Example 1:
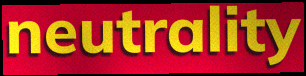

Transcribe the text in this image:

neutrality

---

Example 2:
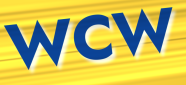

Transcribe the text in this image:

WCW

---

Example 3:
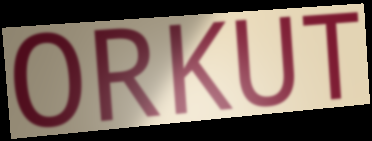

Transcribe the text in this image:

ORKUT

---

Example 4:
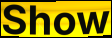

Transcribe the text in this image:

Show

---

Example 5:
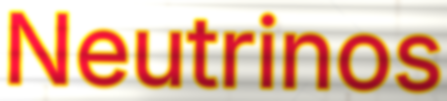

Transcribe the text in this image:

Neutrinos